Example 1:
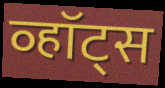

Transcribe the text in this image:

व्हॉट्स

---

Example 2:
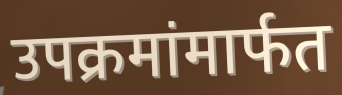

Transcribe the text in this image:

उपक्रमांमार्फत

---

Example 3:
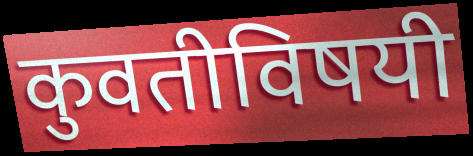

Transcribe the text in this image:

कुवतीविषयी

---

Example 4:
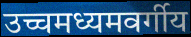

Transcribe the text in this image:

उच्चमध्यमवर्गीय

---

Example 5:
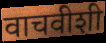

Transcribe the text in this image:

वाचवीशी